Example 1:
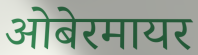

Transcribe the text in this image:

ओबेरमायर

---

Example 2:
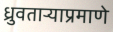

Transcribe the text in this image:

ध्रुवताऱ्याप्रमाणे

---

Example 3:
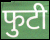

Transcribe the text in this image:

फुटी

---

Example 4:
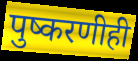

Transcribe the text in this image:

पुष्करणीही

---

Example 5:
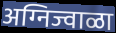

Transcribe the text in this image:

अग्निज्वाळा